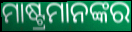
ମାଷ୍ଟ୍ରମାନଙ୍କର